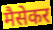
मैसेकर